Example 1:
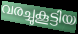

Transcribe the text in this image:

വരച്ചുകൂട്ടിയ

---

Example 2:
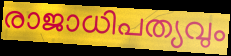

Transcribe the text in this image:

രാജാധിപത്യവും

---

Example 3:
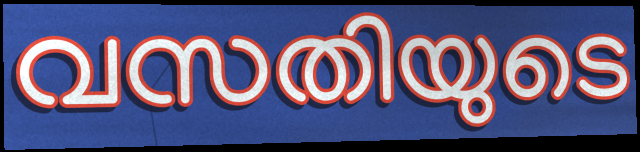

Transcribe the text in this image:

വസതിയുടെ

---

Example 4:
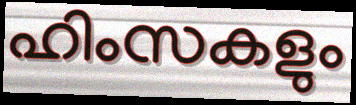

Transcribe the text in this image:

ഹിംസകളും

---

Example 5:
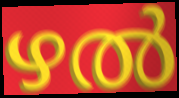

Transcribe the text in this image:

ഴൽ